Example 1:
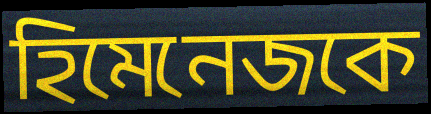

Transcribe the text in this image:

হিমেনেজকে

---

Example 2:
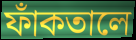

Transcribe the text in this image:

ফাঁকতালে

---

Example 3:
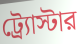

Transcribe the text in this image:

ট্র্যোস্টার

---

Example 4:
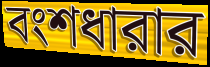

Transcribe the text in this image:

বংশধারার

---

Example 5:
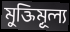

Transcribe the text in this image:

মুক্তিমূল্য